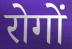
रोगों